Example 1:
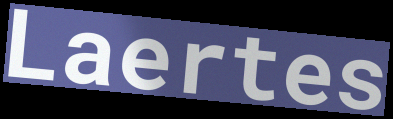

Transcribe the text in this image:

Laertes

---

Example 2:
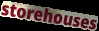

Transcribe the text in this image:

storehouses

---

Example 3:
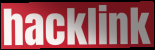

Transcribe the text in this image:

hacklink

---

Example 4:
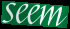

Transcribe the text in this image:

seem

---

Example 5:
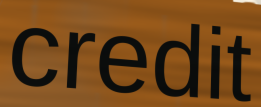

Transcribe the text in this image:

credit